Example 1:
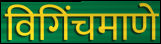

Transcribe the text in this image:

विगिंचमाणे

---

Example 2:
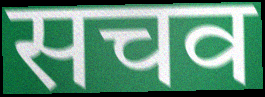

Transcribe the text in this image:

सचव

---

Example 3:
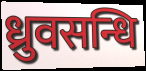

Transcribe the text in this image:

ध्रुवसन्धि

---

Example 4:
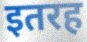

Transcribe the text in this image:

इतरह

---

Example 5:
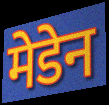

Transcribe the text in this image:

मेडेन